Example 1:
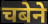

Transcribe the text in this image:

चबेने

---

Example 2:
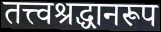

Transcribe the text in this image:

तत्त्वश्रद्धानरूप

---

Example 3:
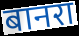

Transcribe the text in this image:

बानरा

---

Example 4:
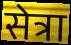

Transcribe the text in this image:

सेत्रा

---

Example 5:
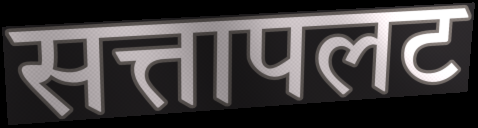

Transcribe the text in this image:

सत्तापलट